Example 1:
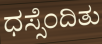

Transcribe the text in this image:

ಧಸ್ಸೆಂದಿತು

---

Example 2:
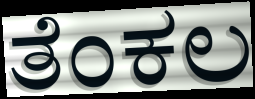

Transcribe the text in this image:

ತೆಂಕಲ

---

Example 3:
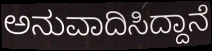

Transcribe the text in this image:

ಅನುವಾದಿಸಿದ್ದಾನೆ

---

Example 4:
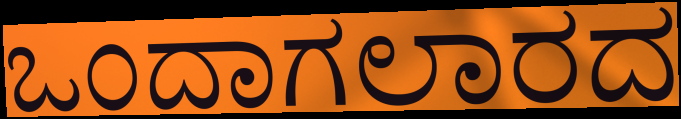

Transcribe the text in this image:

ಒಂದಾಗಲಾರದ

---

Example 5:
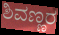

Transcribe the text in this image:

ಶಿವಣ್ಣರ